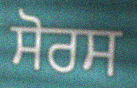
ਸੋਰਸ